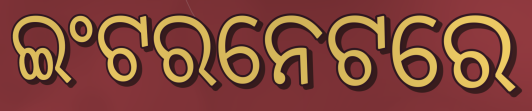
ଇଂଟରନେଟରେ